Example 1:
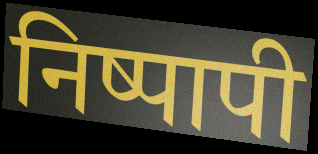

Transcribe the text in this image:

निष्पापी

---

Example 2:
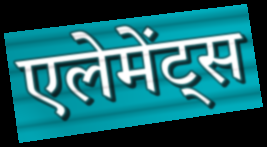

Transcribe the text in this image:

एलेमेंट्स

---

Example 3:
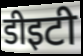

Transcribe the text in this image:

डीइटी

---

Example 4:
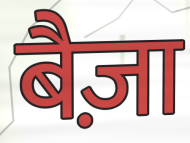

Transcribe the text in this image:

बैज़ा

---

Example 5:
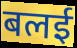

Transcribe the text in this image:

बलई